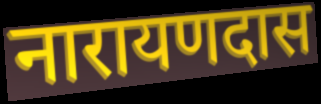
नारायणदास